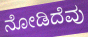
ನೋಡಿದೆವು